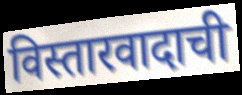
विस्तारवादाची